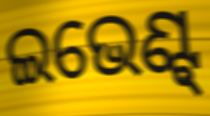
ଇଭେଣ୍ଟ୍